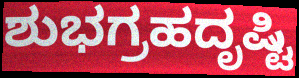
ಶುಭಗ್ರಹದೃಷ್ಟಿ